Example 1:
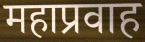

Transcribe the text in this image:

महाप्रवाह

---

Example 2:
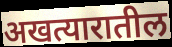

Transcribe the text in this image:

अखत्यारातील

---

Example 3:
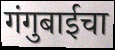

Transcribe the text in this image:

गंगुबाईचा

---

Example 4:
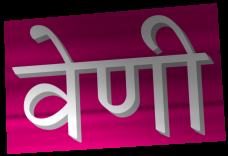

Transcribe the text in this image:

वेणी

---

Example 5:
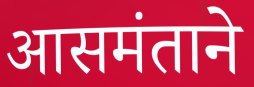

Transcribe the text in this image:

आसमंताने